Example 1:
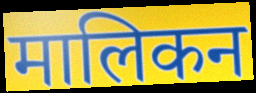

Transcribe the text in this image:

मालिकन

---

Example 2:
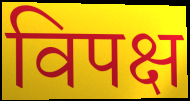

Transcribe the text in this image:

विपक्ष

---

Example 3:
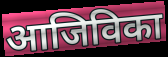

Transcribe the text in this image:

आजिविका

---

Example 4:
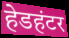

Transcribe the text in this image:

हेडहंटर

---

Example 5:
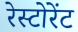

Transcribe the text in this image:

रेस्टोरेंट